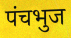
पंचभुज